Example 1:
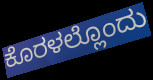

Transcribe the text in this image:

ಕೊರಳಲ್ಲೊಂದು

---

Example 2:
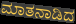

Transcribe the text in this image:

ಮಾತನಾಡಿದ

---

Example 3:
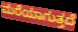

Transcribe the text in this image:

ಮರೆಯಾಗುತ್ತದೆ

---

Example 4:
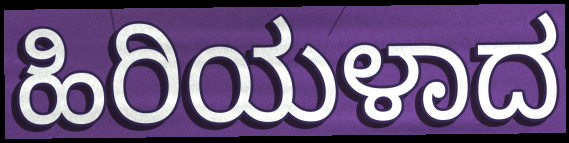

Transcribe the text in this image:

ಹಿರಿಯಳಾದ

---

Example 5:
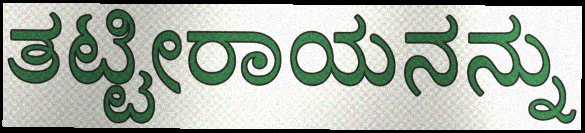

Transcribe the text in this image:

ತಟ್ಟೀರಾಯನನ್ನು